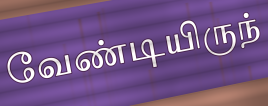
வேண்டியிருந்